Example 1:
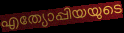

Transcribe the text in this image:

എത്യോപ്പിയയുടെ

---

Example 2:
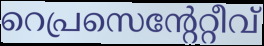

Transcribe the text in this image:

റെപ്രസെന്റേറ്റീവ്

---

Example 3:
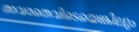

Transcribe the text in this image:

അവരതെവിടെയെങ്കിലും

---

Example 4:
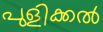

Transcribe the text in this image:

പുളിക്കൽ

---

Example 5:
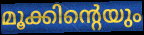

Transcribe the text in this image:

മൂക്കിന്റെയും